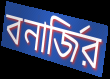
বনার্জির